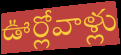
ఊర్లోవాళ్లు